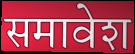
समावेश